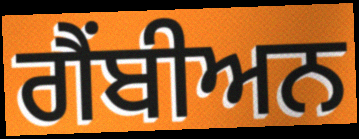
ਗੈਂਬੀਅਨ